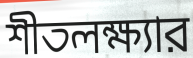
শীতলক্ষ্যার